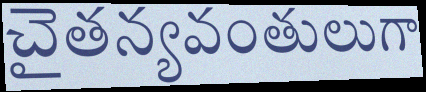
చైతన్యవంతులుగా